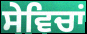
ਸੇਵਿਚਾਂ